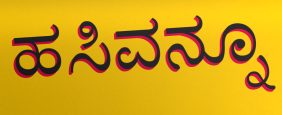
ಹಸಿವನ್ನೂ